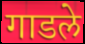
गाडले